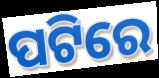
ପଟିରେ